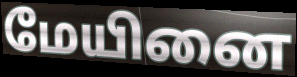
மேயினை